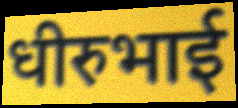
धीरुभाई